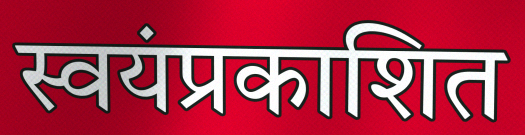
स्वयंप्रकाशित